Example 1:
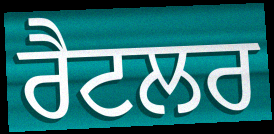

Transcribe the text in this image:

ਰੈਟਲਰ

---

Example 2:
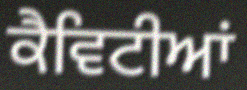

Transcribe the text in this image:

ਕੈਵਿਟੀਆਂ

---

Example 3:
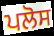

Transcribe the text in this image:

ਪਲੋਸ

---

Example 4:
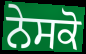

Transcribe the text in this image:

ਨੇਸਕੋ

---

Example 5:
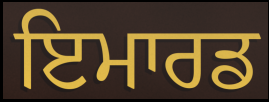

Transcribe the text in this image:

ਇਮਾਰਡ